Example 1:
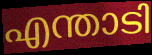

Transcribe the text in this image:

എന്താടി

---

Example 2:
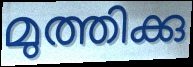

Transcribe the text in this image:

മുത്തിക്കു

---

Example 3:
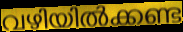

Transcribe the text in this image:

വഴിയിൽക്കണ്ട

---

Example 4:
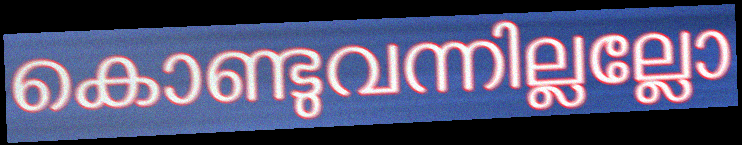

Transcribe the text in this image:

കൊണ്ടുവന്നില്ലല്ലോ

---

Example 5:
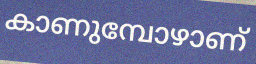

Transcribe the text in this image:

കാണുമ്പോഴാണ്